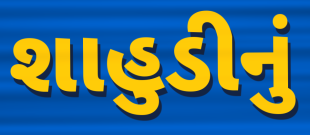
શાહુડીનું